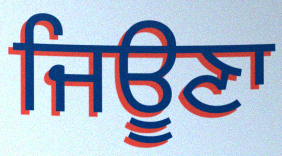
ਜਿਊਣਾ